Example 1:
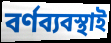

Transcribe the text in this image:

বর্ণব্যবস্থাই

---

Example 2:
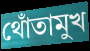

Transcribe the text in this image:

থোঁতামুখ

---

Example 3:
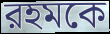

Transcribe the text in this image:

রহমকে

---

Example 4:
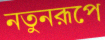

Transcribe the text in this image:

নতুনরূপে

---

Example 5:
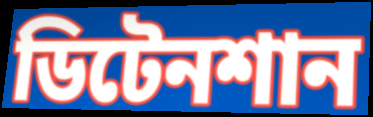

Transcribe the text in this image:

ডিটেনশান